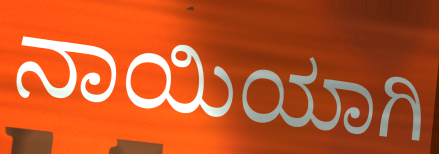
ನಾಯಿಯಾಗಿ